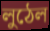
লুঠেল